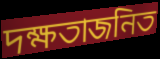
দক্ষতাজনিত